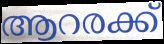
ആറരക്ക്